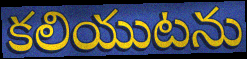
కలియుటను